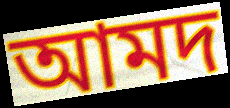
আমদ